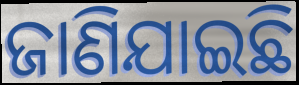
ଜାଣିଯାଇଛି